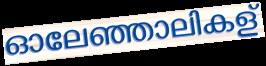
ഓലേഞ്ഞാലികള്